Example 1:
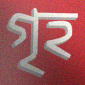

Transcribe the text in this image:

গৃহ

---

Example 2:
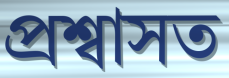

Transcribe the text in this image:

প্ৰশ্বাসত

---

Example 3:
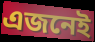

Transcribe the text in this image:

এজনেই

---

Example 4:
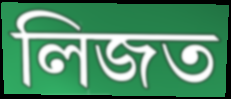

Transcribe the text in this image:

লিজত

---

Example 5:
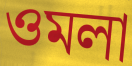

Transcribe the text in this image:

ওমলা